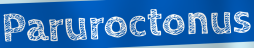
Paruroctonus